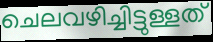
ചെലവഴിച്ചിട്ടുള്ളത്